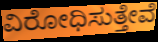
ವಿರೋಧಿಸುತ್ತೇವೆ